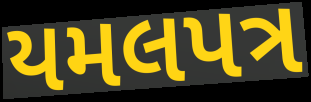
યમલપત્ર